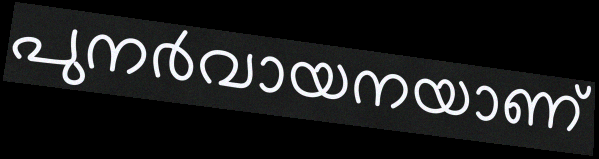
പുനർവായനയാണ്